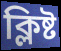
ক্লিষ্ট